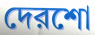
দেরশো